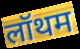
लॉथम